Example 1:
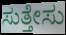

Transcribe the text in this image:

ಸುತ್ತೇಸು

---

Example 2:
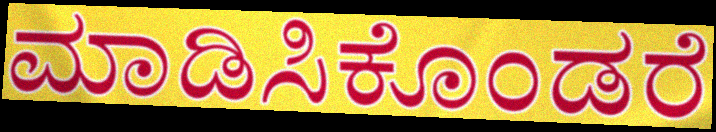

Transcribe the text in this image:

ಮಾಡಿಸಿಕೊಂಡರೆ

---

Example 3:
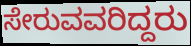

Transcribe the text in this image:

ಸೇರುವವರಿದ್ದರು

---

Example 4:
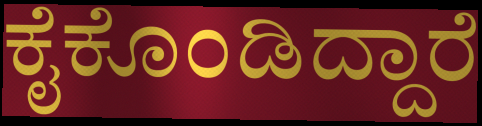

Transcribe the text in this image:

ಕೈಕೊಂಡಿದ್ದಾರೆ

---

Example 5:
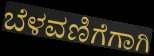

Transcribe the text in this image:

ಬೆಳವಣಿಗೆಗಾಗಿ